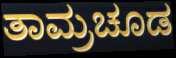
ತಾಮ್ರಚೂಡ